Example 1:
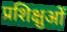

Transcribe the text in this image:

प्रशिक्षुओं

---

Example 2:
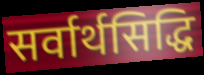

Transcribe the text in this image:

सर्वार्थसिद्धि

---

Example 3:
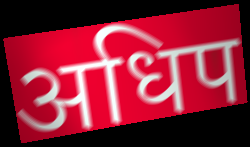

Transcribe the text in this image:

अधिप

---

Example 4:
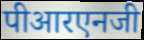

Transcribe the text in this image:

पीआरएनजी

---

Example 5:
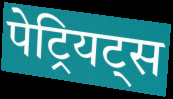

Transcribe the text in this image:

पेट्रियट्स